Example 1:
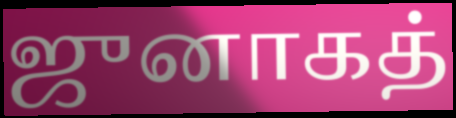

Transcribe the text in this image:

ஜுனாகத்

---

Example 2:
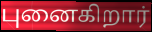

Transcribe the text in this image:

புனைகிறார்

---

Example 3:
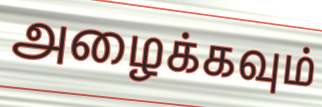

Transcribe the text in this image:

அழைக்கவும்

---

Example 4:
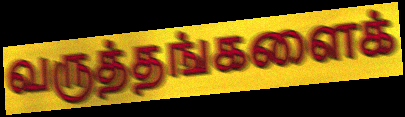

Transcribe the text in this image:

வருத்தங்களைக்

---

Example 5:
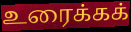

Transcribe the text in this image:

உரைக்கக்